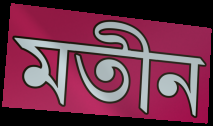
মতীন